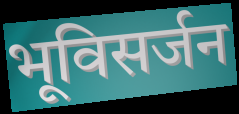
भूविसर्जन